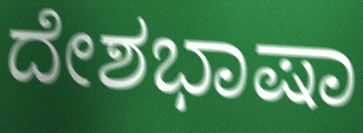
ದೇಶಭಾಷಾ